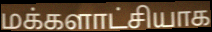
மக்களாட்சியாக